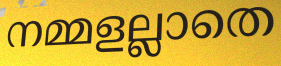
നമ്മളല്ലാതെ